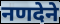
नणदेने